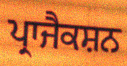
ਪ੍ਰਾਜੈਕਸ਼ਨ